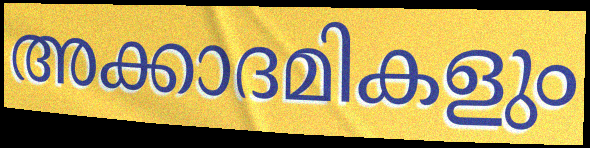
അക്കാദമികളും